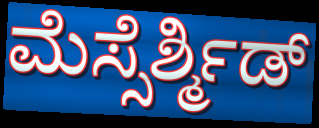
ಮೆಸ್ಸೆರ್ಶ್ಮಿಡ್